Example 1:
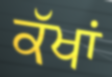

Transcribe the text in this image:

ਕੱਖਾਂ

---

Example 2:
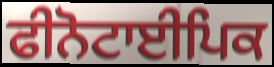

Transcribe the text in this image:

ਫੀਨੋਟਾਈਪਿਕ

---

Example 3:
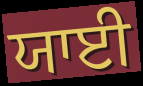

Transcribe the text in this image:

ਯਾਈ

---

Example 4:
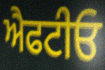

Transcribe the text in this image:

ਐਫਟੀਓ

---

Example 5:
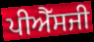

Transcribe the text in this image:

ਪੀਐੱਸਜੀ